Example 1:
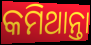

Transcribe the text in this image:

କମିଥାନ୍ତା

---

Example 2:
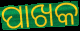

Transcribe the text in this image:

ପାଖକ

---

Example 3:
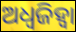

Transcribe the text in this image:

ଅଧ୍ୱଜିହ୍ବା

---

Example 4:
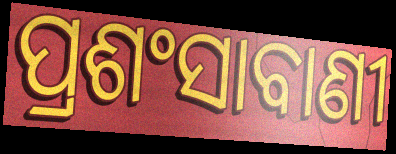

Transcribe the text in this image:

ପ୍ରଶଂସାବାଣୀ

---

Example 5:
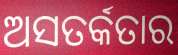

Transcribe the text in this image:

ଅସତର୍କତାର